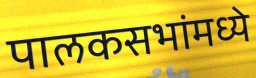
पालकसभांमध्ये